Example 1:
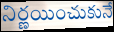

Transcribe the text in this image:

నిర్ణయించుకునే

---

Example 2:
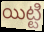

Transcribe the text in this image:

యిట్టి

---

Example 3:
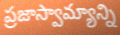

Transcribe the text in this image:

ప్రజాస్వామ్యాన్ని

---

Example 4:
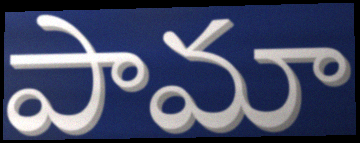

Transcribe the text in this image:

పామా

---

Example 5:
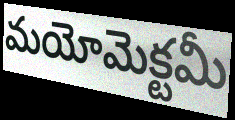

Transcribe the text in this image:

మయోమెక్టమీ